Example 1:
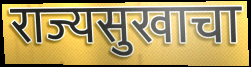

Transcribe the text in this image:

राज्यसुखाचा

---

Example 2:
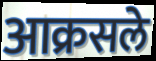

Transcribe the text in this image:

आक्रसले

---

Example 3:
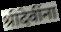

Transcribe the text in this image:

श्रीदेवींना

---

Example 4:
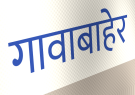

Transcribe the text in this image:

गावाबाहेर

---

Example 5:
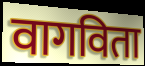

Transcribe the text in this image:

वागविता